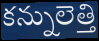
కన్నులెత్తి